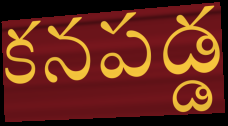
కనపడ్డ